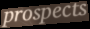
prospects